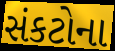
સંકટોના